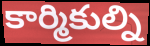
కార్మికుల్ని